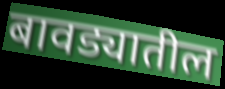
बावड्यातील